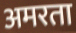
अमरता